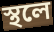
স্থলে